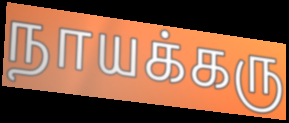
நாயக்கரு